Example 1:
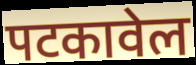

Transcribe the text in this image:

पटकावेल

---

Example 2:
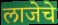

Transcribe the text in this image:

लाजेचे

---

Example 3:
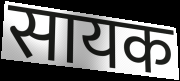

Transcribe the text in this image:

सायक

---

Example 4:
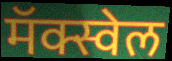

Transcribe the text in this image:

मॅक्स्वेल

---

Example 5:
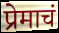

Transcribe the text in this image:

प्रेमाचं